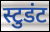
स्टुडंट